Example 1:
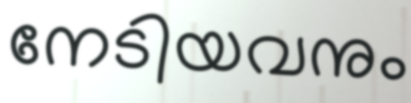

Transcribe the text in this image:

നേടിയവനും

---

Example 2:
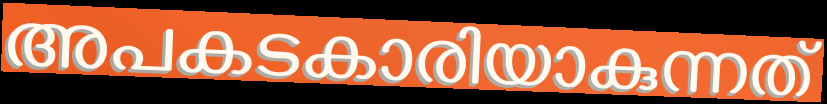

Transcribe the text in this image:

അപകടകാരിയാകുന്നത്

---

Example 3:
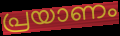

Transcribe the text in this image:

പ്രയാണം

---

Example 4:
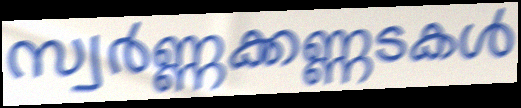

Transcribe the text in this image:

സ്വർണ്ണക്കണ്ണടകൾ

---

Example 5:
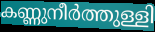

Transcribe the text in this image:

കണ്ണുനീർത്തുള്ളി